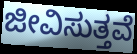
ಜೀವಿಸುತ್ತವೆ